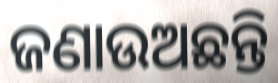
ଜଣାଉଅଛନ୍ତି